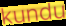
kundu